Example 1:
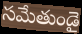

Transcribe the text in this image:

సమేతుండై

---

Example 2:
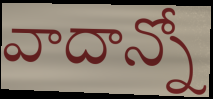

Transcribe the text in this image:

వాదాన్నో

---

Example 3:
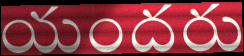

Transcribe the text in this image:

యందరు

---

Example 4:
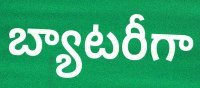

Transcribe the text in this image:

బ్యాటరీగా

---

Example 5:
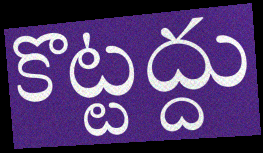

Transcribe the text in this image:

కొట్టద్దు